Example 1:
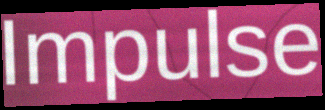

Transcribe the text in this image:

Impulse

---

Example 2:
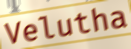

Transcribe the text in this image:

Velutha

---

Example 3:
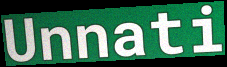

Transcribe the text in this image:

Unnati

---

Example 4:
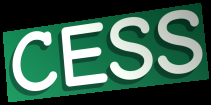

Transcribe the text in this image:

CESS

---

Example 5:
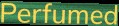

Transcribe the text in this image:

Perfumed